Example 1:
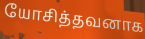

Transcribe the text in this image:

யோசித்தவனாக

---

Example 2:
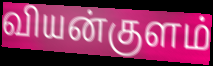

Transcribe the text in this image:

வியன்குளம்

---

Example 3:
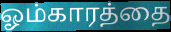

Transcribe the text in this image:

ஓம்காரத்தை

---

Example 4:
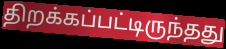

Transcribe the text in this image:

திறக்கப்பட்டிருந்தது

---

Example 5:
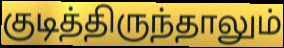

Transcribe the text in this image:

குடித்திருந்தாலும்